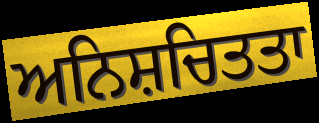
ਅਨਿਸ਼ਚਿਤਤਾ